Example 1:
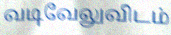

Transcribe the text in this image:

வடிவேலுவிடம்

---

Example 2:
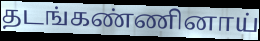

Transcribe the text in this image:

தடங்கண்ணினாய்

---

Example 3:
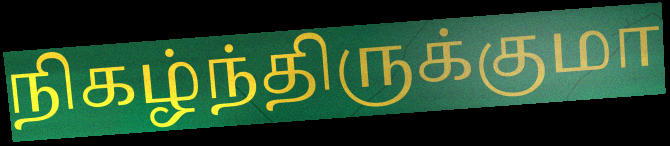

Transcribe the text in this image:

நிகழ்ந்திருக்குமா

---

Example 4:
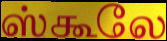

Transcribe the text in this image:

ஸ்கூலே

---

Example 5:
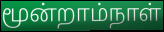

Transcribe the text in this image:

மூன்றாம்நாள்